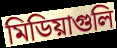
মিডিয়াগুলি